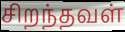
சிறந்தவள்